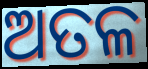
ଅତଳ